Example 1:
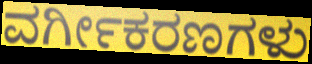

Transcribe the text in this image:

ವರ್ಗೀಕರಣಗಳು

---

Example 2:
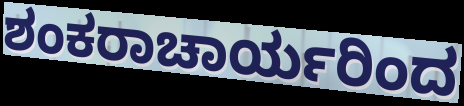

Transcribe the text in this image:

ಶಂಕರಾಚಾರ್ಯರಿಂದ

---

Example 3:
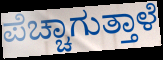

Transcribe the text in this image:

ಪೆಚ್ಚಾಗುತ್ತಾಳೆ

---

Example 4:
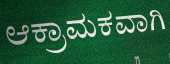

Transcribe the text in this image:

ಆಕ್ರಾಮಕವಾಗಿ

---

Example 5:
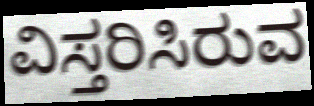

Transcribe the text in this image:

ವಿಸ್ತರಿಸಿರುವ